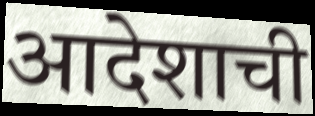
आदेशाची